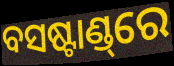
ବସଷ୍ଟାଣ୍ଡ୍‌ରେ